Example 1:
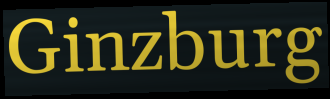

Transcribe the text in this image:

Ginzburg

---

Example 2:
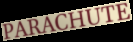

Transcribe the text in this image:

PARACHUTE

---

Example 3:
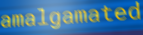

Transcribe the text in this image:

amalgamated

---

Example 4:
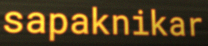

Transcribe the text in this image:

sapaknikar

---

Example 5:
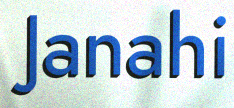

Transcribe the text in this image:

Janahi